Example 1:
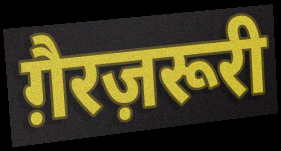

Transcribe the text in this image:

ग़ैरज़रूरी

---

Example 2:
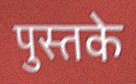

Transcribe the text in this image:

पुस्तके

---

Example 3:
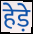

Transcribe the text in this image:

हेड़े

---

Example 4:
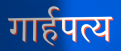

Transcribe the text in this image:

गार्हपत्य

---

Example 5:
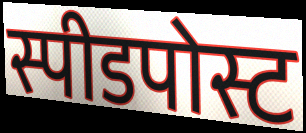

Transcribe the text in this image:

स्पीडपोस्ट